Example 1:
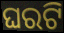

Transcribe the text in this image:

ଘରଟି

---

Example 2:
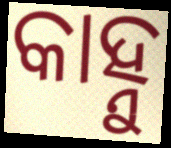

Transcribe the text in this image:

କାହ୍ନୁ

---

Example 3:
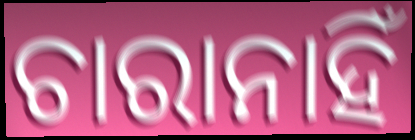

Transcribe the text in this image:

ଚାରାନାହିଁ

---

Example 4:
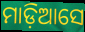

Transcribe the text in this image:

ମାଡ଼ିଆସେ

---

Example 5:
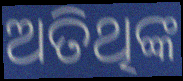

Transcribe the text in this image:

ଅତିଥିଙ୍କ